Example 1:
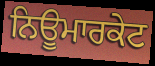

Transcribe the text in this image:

ਨਿਊਮਾਰਕੇਟ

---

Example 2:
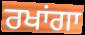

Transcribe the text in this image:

ਰਖਾਂਗਾ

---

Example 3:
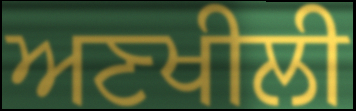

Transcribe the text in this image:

ਅਣਖੀਲੀ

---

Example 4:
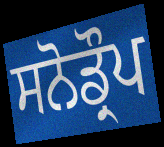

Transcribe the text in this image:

ਸਨੋਡ੍ਰੌਪ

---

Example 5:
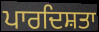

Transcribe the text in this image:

ਪਾਰਦਿਸ਼ਤਾ